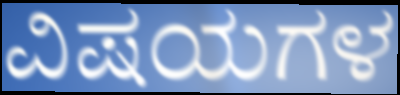
ವಿಷಯಗಳ